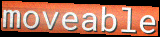
moveable